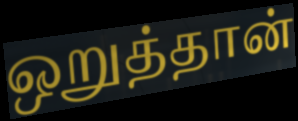
ஒறுத்தான்